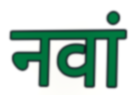
नवां